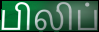
பிலிப்